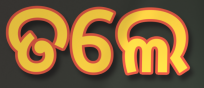
ତଲେ